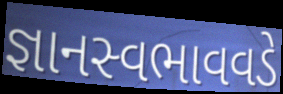
જ્ઞાનસ્વભાવવડે